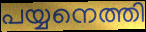
പയ്യനെത്തി